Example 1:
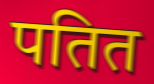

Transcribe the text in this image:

पतित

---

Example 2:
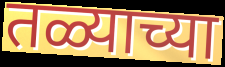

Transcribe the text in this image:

तळ्याच्या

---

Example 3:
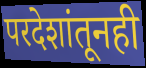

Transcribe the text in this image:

परदेशांतूनही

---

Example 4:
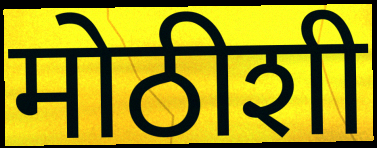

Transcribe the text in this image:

मोठीशी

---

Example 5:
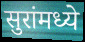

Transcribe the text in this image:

सुरांमध्ये